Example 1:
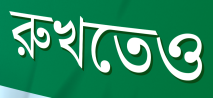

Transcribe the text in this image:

রুখতেও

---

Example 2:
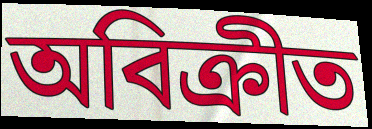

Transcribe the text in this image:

অবিক্রীত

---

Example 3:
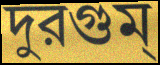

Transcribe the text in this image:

দুরগুম্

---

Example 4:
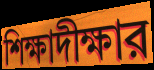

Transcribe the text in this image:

শিক্ষাদীক্ষার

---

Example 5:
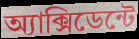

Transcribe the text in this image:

অ্যাক্সিডেন্টে